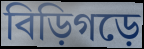
বিড়িগড়ে